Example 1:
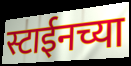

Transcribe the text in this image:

स्टाईनच्या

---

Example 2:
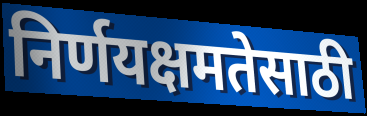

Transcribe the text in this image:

निर्णयक्षमतेसाठी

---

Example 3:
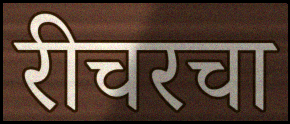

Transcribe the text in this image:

रीचरचा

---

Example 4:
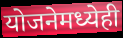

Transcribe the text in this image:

योजनेमध्येही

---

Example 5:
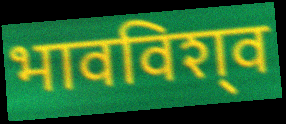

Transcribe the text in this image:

भावविश्व